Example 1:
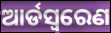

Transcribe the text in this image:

ଆର୍ଡସ୍ଵରେଣ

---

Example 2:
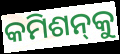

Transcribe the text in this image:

କମିଶନ୍‌କୁ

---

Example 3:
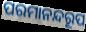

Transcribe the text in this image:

ପରମାନନ୍ଦରୂପ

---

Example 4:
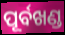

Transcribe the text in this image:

ପୂର୍ବଖଣ୍ଡ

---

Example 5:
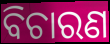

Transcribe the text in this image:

ବିଚାରଣ